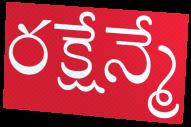
రక్షేన్మే